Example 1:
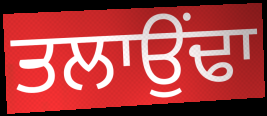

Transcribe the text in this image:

ਤਲਾਉਂਢਾ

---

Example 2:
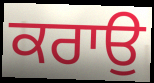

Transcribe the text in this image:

ਕਰਾਉ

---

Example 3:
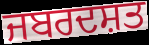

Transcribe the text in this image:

ਜਬਰਦਸ਼ਤ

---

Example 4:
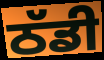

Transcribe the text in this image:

ਠੱਡੀ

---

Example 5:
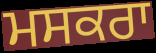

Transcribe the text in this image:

ਮਸਕਰਾ